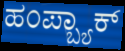
ಹಂಪ್ಬ್ಯಾಕ್